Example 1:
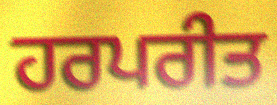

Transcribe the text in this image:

ਹਰਪਰੀਤ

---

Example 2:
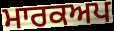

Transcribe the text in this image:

ਮਾਰਕਅਪ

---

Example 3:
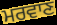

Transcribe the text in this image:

ਮਰਵਾਣ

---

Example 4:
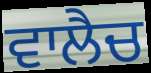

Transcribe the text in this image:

ਵਾਲੈਚ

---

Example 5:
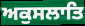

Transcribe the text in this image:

ਅਕੁਸਲਾਤਿ